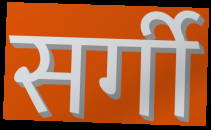
सर्गी